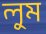
লুম